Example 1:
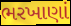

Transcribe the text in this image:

ભરખાણાં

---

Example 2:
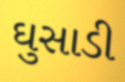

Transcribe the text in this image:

ઘુસાડી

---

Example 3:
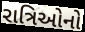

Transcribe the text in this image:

રાત્રિઓનો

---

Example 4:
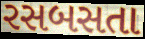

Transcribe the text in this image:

રસબસતા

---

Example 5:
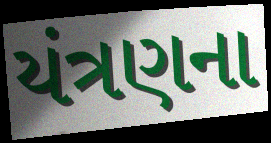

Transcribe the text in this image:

યંત્રણના